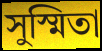
সুস্মিতা